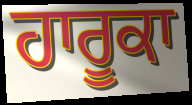
ਹਾਰੂਕਾ